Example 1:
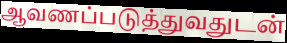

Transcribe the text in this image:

ஆவணப்படுத்துவதுடன்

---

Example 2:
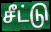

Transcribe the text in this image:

சீட்டு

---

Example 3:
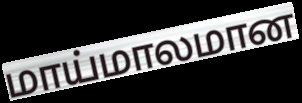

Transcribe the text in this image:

மாய்மாலமான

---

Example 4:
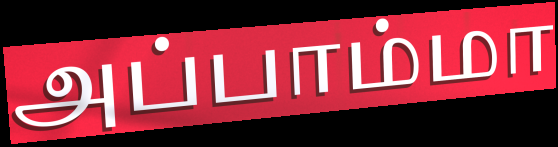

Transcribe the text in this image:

அப்பாம்மா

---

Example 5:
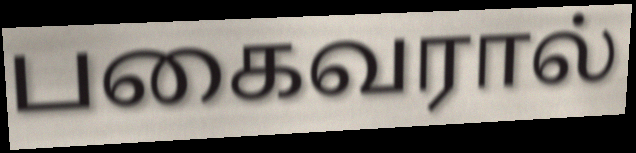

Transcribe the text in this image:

பகைவரால்